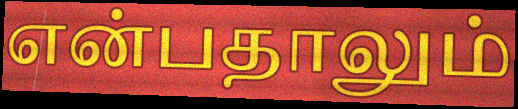
என்பதாலும்